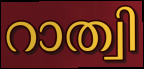
റാത്വി